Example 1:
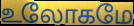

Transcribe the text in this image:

உலோகமே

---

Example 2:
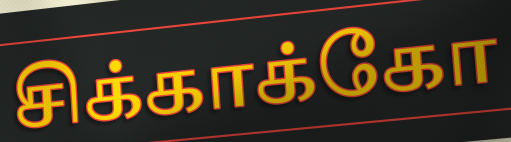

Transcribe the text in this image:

சிக்காக்கோ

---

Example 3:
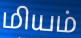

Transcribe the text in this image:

மியம்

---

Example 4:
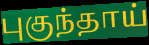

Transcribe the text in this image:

புகுந்தாய்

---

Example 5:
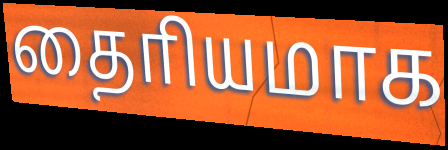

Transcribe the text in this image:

தைரியமாக